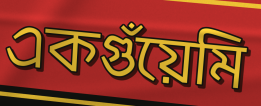
একগুঁয়েমি